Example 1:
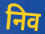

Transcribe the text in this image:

निव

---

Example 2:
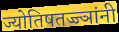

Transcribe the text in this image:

ज्योतिषतज्ज्ञांनी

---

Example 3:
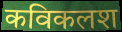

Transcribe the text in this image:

कविकलश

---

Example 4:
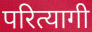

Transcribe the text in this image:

परित्यागी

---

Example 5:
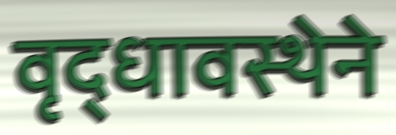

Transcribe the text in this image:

वृद्धावस्थेने